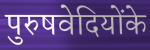
पुरुषवेदियोंके